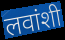
लवांशी